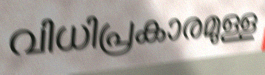
വിധിപ്രകാരമുള്ള